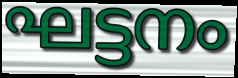
ഘട്ടനം